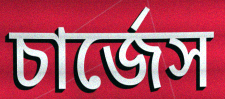
চার্জেস